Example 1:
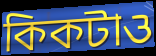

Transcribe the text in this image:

কিকটাও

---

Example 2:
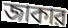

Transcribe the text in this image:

জাকার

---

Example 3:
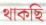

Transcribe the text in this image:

থাকছি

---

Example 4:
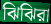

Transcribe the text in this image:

ঝিঝিরা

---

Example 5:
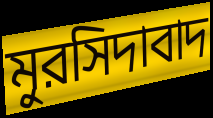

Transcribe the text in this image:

মুরসিদাবাদ